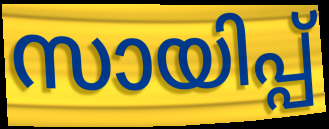
സായിപ്പ്